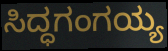
ಸಿದ್ಧಗಂಗಯ್ಯ